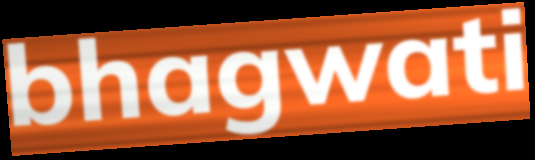
bhagwati